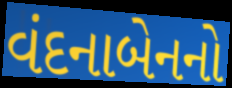
વંદનાબેનનો